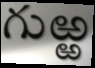
గుఱ్ఱ